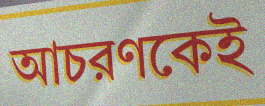
আচরণকেই